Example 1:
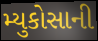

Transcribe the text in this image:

મ્યુકોસાની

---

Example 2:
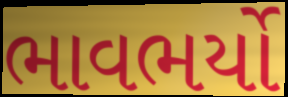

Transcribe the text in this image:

ભાવભર્યો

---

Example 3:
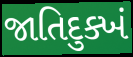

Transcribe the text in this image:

જાતિદુક્ખં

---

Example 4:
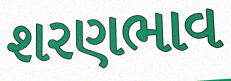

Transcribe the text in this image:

શરણભાવ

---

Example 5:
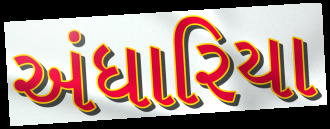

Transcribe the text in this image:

અંધારિયા